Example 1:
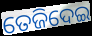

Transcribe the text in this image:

ତେଜିଦେଇ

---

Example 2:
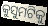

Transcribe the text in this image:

କୁସୁମଟିକୁ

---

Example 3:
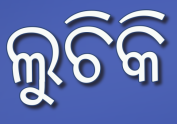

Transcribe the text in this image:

ଲୁଚିକି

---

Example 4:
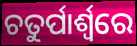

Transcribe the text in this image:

ଚତୁର୍ପାର୍ଶ୍ୱରେ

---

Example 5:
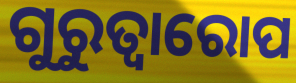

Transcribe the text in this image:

ଗୁରୁତ୍ବାରୋପ